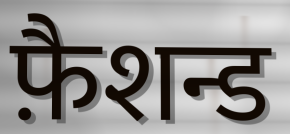
फ़ैशन्ड